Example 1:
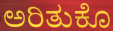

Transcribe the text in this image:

ಅರಿತುಕೊ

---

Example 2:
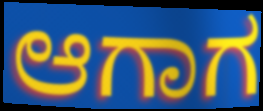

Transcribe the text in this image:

ಆಗಾಗ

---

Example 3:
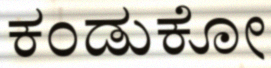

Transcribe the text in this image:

ಕಂಡುಕೋ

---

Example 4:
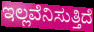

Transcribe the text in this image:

ಇಲ್ಲವೆನಿಸುತ್ತಿದೆ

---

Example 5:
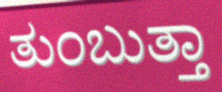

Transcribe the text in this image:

ತುಂಬುತ್ತಾ